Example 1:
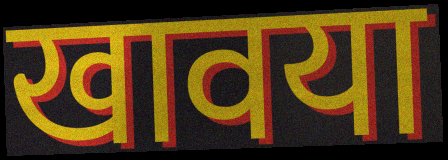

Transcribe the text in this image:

खावया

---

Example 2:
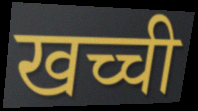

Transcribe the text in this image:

खच्ची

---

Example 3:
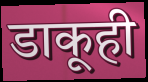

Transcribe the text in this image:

डाकूही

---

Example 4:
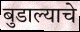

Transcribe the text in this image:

बुडाल्याचे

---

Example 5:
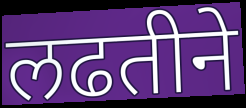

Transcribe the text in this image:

लढतीने